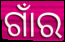
ଗାଁର